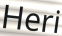
Heri